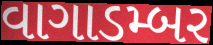
વાગાડમ્બર